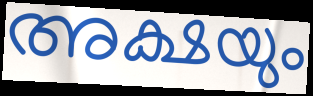
അക്ഷയും